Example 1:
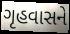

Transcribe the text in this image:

ગૃહવાસને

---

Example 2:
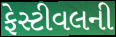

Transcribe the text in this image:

ફેસ્ટીવલની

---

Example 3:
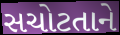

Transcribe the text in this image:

સચોટતાને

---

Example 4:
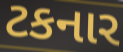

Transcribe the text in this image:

ટકનાર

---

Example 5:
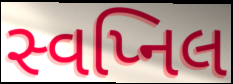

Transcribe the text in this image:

સ્વપ્નિલ